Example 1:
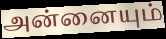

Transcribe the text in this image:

அன்னையும்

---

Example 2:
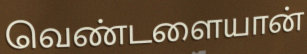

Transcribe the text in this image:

வெண்டளையான்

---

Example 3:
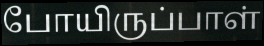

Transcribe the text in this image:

போயிருப்பாள்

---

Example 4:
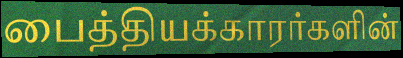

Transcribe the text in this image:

பைத்தியக்காரர்களின்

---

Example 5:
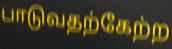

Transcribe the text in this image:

பாடுவதற்கேற்ற